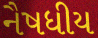
નૈષધીય